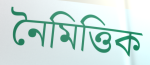
নৈমিত্তিক